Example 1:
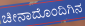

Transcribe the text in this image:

ಚೀನಾದೊಂದಿಗಿನ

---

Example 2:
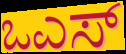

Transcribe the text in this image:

ಒಎಸ್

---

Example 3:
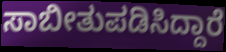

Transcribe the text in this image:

ಸಾಬೀತುಪಡಿಸಿದ್ದಾರೆ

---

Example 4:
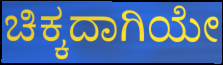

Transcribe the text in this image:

ಚಿಕ್ಕದಾಗಿಯೇ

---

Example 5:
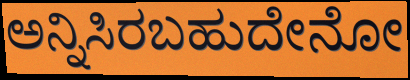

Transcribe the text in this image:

ಅನ್ನಿಸಿರಬಹುದೇನೋ